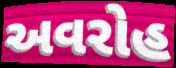
અવરોહ